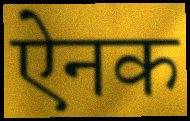
ऐनक